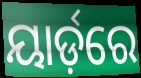
ୟାର୍ଡ଼ରେ